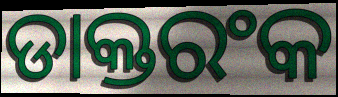
ଡାକ୍ତରଂକ